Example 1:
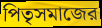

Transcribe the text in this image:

পিতৃসমাজের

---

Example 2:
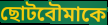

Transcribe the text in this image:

ছোটবৌমাকে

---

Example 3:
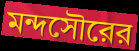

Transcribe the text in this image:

মন্দসৌরের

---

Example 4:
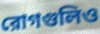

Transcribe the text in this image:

রোগগুলিও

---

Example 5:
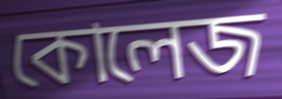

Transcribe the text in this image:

কোলেজ